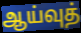
ஆய்வுத்